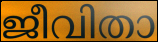
ജീവിതാ